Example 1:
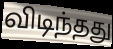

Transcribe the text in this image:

விடிந்தது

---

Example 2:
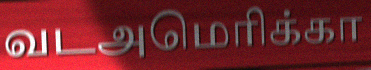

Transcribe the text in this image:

வடஅமெரிக்கா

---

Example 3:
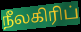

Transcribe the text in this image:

நீலகிரிப்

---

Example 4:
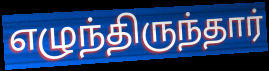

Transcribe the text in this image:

எழுந்திருந்தார்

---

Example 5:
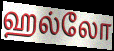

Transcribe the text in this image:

ஹல்லோ